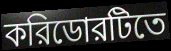
করিডোরটিতে